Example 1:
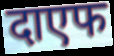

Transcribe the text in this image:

दाएफ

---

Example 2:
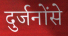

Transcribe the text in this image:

दुर्जनोंसे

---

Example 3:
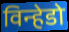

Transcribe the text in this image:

विन्हेडो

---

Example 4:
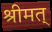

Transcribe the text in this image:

श्रीमत्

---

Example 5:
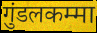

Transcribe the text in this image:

गुंडलकम्मा